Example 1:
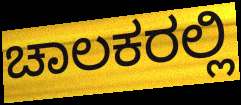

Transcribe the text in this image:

ಚಾಲಕರಲ್ಲಿ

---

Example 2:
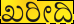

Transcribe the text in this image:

ಖರೀದಿ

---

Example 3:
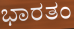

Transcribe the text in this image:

ಭಾರತಂ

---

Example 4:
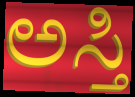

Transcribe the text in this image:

ಅಸ್ತಿ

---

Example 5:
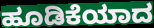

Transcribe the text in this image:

ಹೂಡಿಕೆಯಾದ